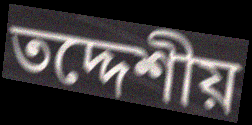
তদ্দেশীয়